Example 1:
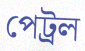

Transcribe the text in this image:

পেট্ৰল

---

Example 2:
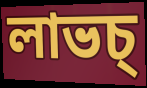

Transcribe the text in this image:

লাভচ্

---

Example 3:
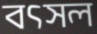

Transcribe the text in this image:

বৎসল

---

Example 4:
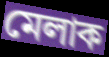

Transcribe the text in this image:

মেলাক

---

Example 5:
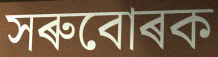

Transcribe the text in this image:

সৰুবোৰক